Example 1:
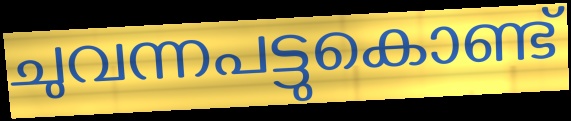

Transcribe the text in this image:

ചുവന്നപട്ടുകൊണ്ട്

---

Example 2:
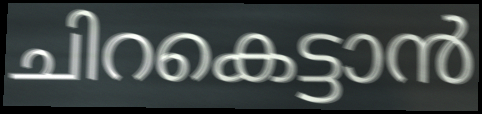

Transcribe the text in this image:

ചിറകെട്ടാൻ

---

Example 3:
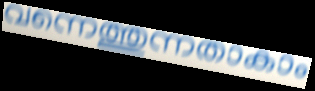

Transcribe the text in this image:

വന്നെത്തുന്നതാകാം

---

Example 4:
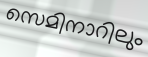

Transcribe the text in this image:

സെമിനാറിലും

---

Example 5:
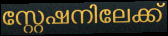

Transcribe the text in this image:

സ്റ്റേഷനിലേക്ക്